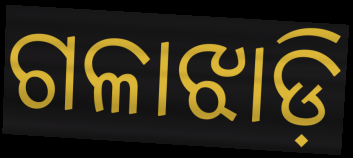
ଗଳାଝାଡ଼ି